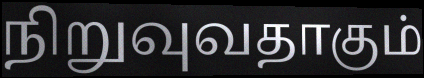
நிறுவுவதாகும்